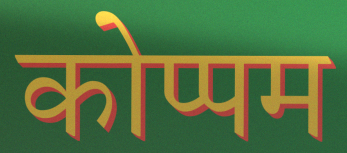
कोप्पम